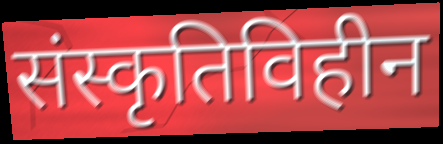
संस्कृतिविहीन